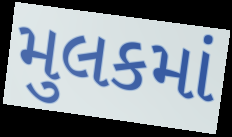
મુલકમાં